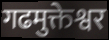
गढमुक्तेश्वर